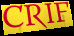
CRIF